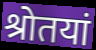
श्रोतयां